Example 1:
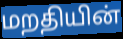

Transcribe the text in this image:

மறதியின்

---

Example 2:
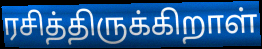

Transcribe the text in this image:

ரசித்திருக்கிறாள்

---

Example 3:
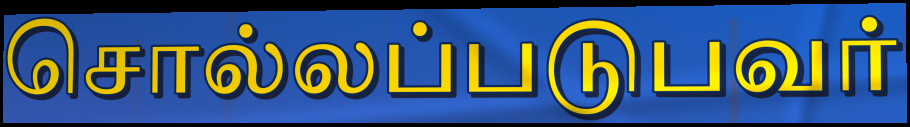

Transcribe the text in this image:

சொல்லப்படுபவர்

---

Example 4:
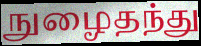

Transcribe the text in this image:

நுழைதந்து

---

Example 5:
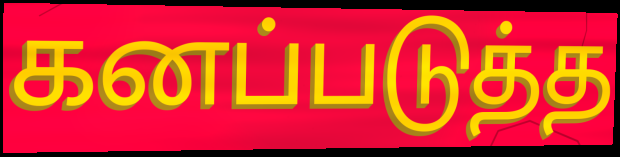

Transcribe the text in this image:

கனப்படுத்த